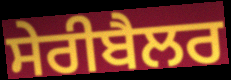
ਸੇਰੀਬੈਲਰ